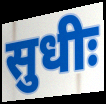
सुधीः